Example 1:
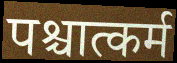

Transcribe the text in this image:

पश्चात्कर्म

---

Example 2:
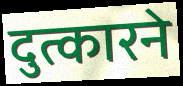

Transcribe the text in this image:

दुत्कारने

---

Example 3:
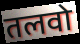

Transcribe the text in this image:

तलवो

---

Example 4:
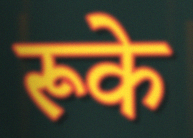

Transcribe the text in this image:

रूके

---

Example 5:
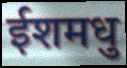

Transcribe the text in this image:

ईशमधु